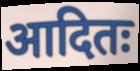
आदितः